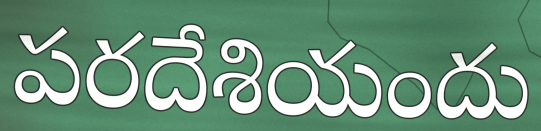
పరదేశియందు